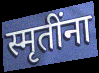
स्मृतींना